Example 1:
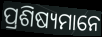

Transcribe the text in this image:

ପ୍ରଶିଷ୍ୟମାନେ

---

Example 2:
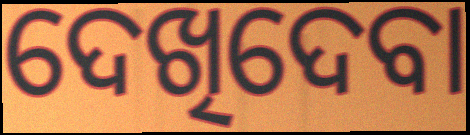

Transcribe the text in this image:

ଦେଖିଦେବା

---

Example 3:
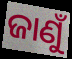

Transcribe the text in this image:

ଜାଣୁଁ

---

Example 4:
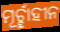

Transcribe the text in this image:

ମୂର୍ଚ୍ଛାହୀନ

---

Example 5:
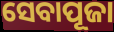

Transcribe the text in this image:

ସେବାପୂଜା